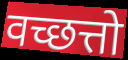
वच्छत्तो